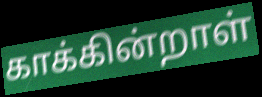
காக்கின்றாள்